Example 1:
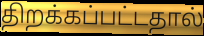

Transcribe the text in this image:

திறக்கப்பட்டதால்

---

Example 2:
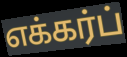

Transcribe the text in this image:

எக்கர்ப்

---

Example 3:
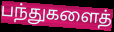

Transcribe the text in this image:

பந்துகளைத்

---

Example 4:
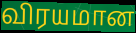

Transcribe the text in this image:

விரயமான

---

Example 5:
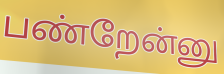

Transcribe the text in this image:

பண்றேன்னு